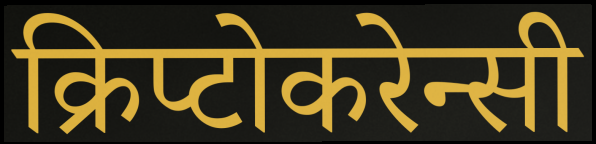
क्रिप्टोकरेन्सी